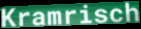
Kramrisch